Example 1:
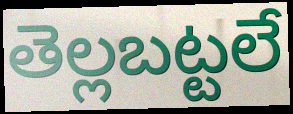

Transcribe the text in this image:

తెల్లబట్టలే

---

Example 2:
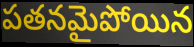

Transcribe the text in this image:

పతనమైపోయిన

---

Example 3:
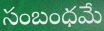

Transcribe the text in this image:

సంబంధమే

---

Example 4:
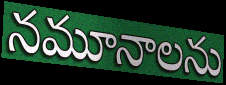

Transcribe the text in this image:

నమూనాలను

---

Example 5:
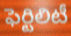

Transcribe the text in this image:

ఫెర్టిలిటీ